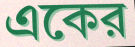
একের